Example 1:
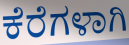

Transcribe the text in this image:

ಕೆರೆಗಳಾಗಿ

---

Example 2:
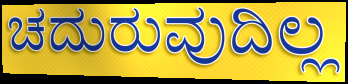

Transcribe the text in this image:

ಚದುರುವುದಿಲ್ಲ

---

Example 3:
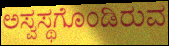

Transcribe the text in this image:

ಅಸ್ವಸ್ಥಗೊಂಡಿರುವ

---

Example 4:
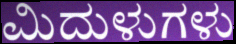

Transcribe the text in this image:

ಮಿದುಳುಗಳು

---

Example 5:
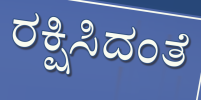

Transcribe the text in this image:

ರಕ್ಷಿಸಿದಂತೆ